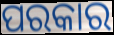
ପରକାର